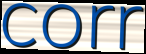
corr